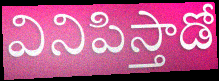
వినిపిస్తాడో